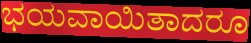
ಭಯವಾಯಿತಾದರೂ